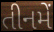
તીનમેં